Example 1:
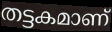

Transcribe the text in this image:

തട്ടകമാണ്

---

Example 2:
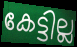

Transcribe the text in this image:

കേട്ടില്ല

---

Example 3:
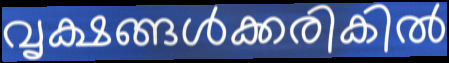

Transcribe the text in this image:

വൃക്ഷങ്ങൾക്കരികിൽ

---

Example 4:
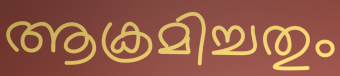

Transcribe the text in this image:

ആക്രമിച്ചതും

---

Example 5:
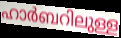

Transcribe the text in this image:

ഹാർബറിലുള്ള